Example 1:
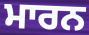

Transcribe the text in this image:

ਮਾਰਨ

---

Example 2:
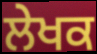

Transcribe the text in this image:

ਲੇਖਕ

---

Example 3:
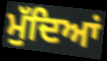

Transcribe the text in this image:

ਮੁੱਦਿਆਂ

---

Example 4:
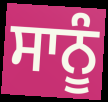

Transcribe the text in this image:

ਸਾਨੂੰ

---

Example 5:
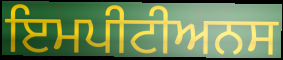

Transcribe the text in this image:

ਇਮਪੀਟੀਅਨਸ